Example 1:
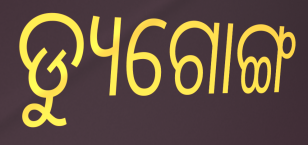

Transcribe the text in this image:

ଡ୍ୟୁଗୋଙ୍ଗ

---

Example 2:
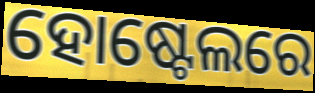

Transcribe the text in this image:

ହୋଷ୍ଟେଲରେ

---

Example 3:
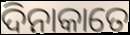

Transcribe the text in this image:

ଦିନାକାତେ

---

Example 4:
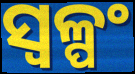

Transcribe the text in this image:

ସ୍ୱଳ୍ପଂ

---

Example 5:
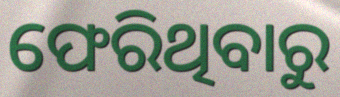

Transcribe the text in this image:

ଫେରିଥିବାରୁ